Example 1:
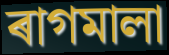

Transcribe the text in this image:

ৰাগমালা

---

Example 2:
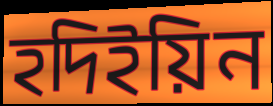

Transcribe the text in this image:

হদিইয়িন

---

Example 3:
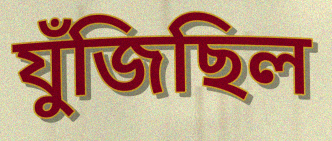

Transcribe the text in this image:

যুঁজিছিল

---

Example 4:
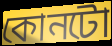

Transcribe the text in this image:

কোনটো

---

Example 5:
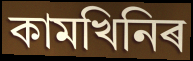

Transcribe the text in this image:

কামখিনিৰ